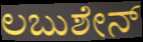
ಲಬುಶೇನ್